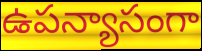
ఉపన్యాసంగా